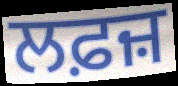
ਲਫ਼ਜ਼